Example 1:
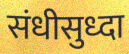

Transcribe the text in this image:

संधीसुध्दा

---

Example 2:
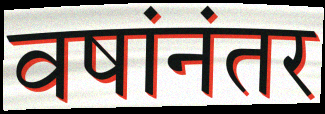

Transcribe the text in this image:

वषांनंतर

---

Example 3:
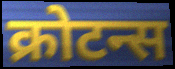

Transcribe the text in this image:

क्रोटन्स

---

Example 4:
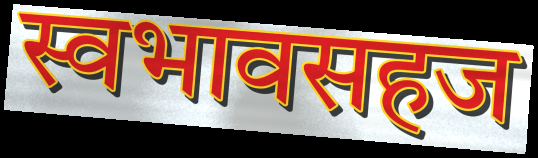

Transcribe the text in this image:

स्वभावसहज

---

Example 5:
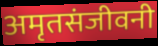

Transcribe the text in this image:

अमृतसंजीवनी